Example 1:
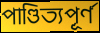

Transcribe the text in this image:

পাণ্ডিত্যপূৰ্ণ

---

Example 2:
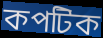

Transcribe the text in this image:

কপটিক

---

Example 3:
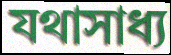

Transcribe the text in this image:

যথাসাধ্য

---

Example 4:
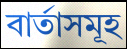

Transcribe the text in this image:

বাৰ্তাসমূহ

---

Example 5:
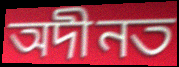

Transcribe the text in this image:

অদীনত